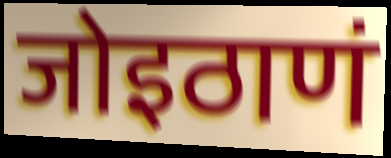
जोइठाणं